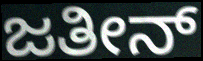
ಜತೀನ್